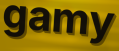
gamy